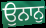
ਉਨਾਨੁ